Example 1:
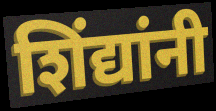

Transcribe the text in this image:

शिंद्यांनी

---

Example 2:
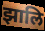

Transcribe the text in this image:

झालि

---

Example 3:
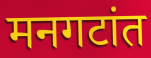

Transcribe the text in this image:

मनगटांत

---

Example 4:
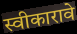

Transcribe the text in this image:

स्वीकारावे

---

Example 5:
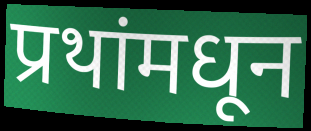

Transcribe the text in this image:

प्रथांमधून